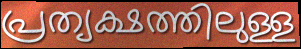
പ്രത്യക്ഷത്തിലുള്ള